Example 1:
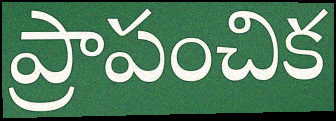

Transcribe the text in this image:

ప్రాపంచిక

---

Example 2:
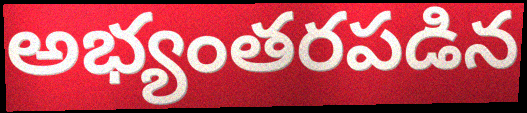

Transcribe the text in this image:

అభ్యంతరపడిన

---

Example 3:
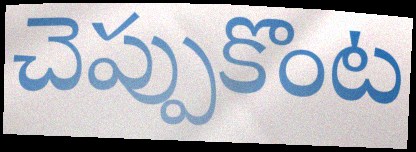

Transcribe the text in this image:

చెప్పుకొంట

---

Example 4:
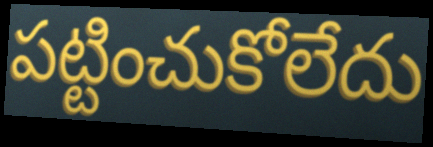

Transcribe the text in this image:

పట్టించుకోలేదు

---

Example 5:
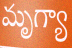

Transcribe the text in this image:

మృగ్యా